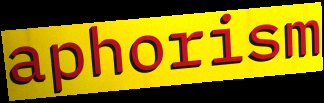
aphorism